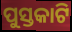
ପୁସ୍ତକାଟି